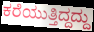
ಕರೆಯುತ್ತಿದ್ದದ್ದು